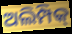
ଅଲିମ୍ପିକ୍